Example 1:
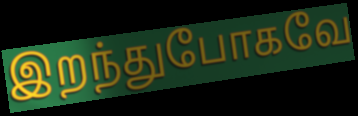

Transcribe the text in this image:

இறந்துபோகவே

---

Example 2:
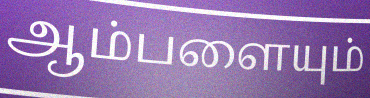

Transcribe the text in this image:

ஆம்பளையும்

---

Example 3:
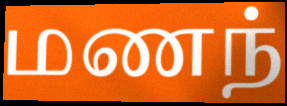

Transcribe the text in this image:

மணந்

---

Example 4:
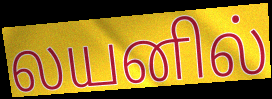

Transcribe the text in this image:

லயனில்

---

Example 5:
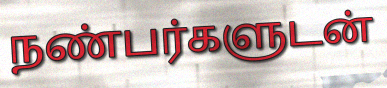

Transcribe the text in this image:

நண்பர்களுடன்